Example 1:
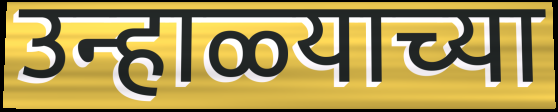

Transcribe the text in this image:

उन्हाळ्याच्या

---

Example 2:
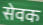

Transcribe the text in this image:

सेवक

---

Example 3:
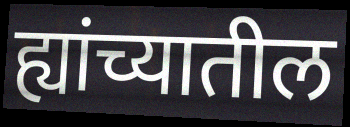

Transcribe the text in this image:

ह्यांच्यातील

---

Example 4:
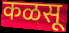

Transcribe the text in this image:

कळसू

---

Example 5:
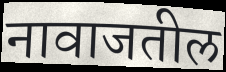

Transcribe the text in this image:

नावाजतील